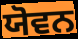
ਯੋਵਨ